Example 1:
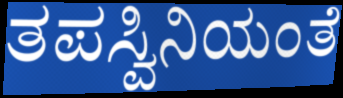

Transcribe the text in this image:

ತಪಸ್ವಿನಿಯಂತೆ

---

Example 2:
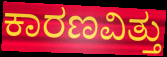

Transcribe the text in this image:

ಕಾರಣವಿತ್ತು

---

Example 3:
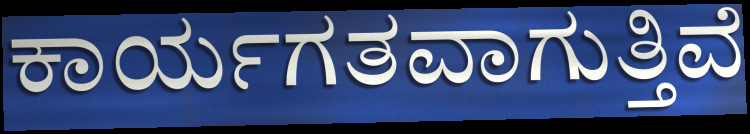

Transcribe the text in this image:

ಕಾರ್ಯಗತವಾಗುತ್ತಿವೆ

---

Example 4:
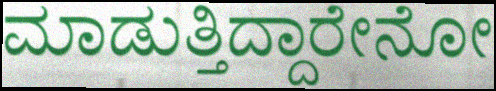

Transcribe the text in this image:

ಮಾಡುತ್ತಿದ್ದಾರೇನೋ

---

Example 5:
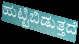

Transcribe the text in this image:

ಹುಟ್ಟಿಬಿಡುತ್ತದೆ